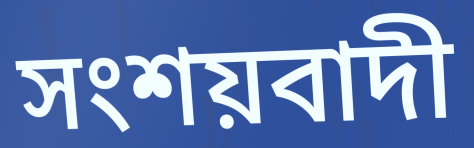
সংশয়বাদী